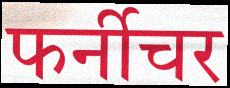
फर्नीचर